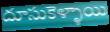
దూసుకెళ్ళాయి